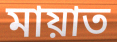
মায়াত